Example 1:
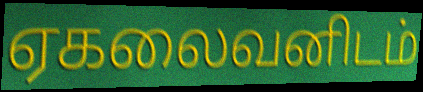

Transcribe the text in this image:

ஏகலைவனிடம்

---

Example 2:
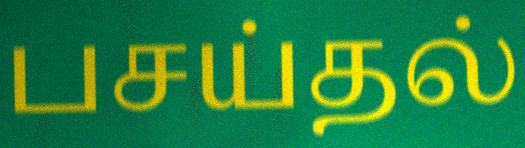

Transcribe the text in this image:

பசய்தல்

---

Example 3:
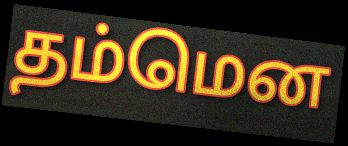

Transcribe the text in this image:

தம்மென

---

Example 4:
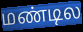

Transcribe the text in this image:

மண்டில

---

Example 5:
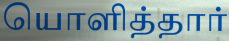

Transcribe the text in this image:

யொளித்தார்